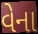
વેના